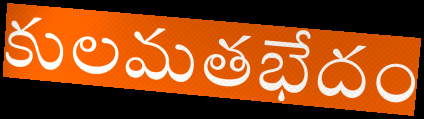
కులమతభేదం